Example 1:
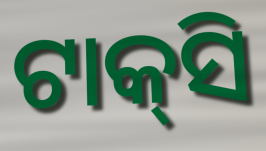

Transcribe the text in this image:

ଟାକ୍‍ସି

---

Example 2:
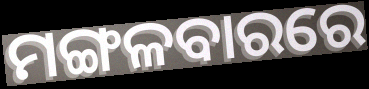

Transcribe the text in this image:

ମଙ୍ଗଳବାରରେ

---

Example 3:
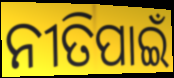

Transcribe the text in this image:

ନୀତିପାଇଁ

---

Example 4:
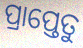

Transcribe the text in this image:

ପ୍ରାପ୍ତେତୁ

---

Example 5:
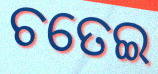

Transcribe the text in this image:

ଚତେଇ